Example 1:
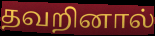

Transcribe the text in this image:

தவறினால்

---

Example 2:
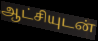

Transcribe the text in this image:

ஆட்சியுடன்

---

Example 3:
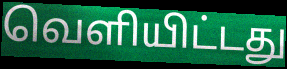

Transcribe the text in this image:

வெளியிட்டது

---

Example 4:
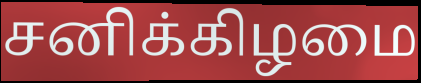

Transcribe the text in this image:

சனிக்கிழமை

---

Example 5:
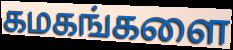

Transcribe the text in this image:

கமகங்களை